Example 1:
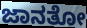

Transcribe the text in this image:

ಜಾನತೋ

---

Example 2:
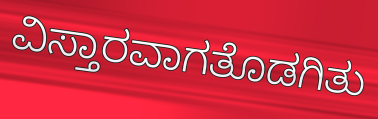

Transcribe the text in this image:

ವಿಸ್ತಾರವಾಗತೊಡಗಿತು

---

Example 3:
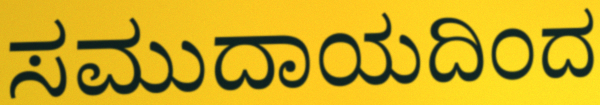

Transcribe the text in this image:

ಸಮುದಾಯದಿಂದ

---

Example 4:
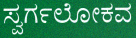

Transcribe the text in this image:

ಸ್ವರ್ಗಲೋಕವ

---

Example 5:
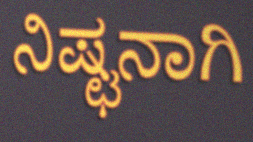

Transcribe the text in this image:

ನಿಷ್ಟನಾಗಿ